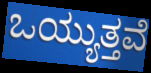
ಒಯ್ಯುತ್ತವೆ